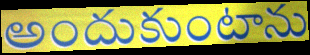
అందుకుంటాను